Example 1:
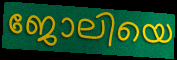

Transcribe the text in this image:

ജോലിയെ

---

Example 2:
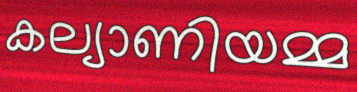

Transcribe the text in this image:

കല്യാണിയമ്മ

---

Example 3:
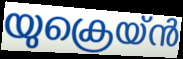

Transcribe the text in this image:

യുക്രെയ്ൻ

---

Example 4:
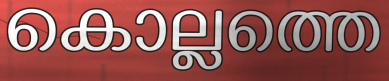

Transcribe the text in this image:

കൊല്ലത്തെ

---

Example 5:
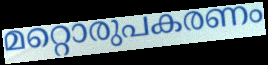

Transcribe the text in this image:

മറ്റൊരുപകരണം